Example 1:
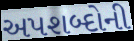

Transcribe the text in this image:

અપશબ્દોની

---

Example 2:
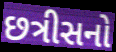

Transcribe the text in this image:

છત્રીસનો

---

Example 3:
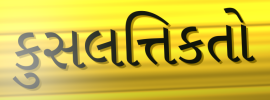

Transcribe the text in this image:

કુસલત્તિકતો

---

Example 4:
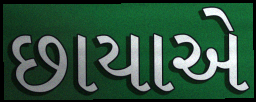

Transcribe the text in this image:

છાયાએ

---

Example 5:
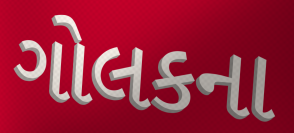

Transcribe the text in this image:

ગોલકના